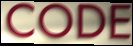
CODE